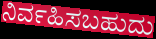
ನಿರ್ವಹಿಸಬಹುದು